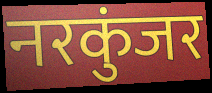
नरकुंजर